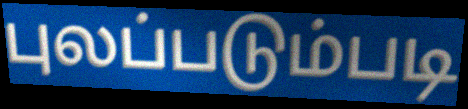
புலப்படும்படி